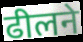
ढीलने